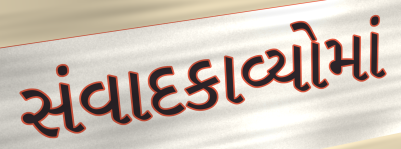
સંવાદકાવ્યોમાં